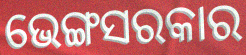
ଭେଙ୍ଗସରକାର